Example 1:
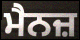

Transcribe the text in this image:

ਮੈਨਜ਼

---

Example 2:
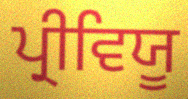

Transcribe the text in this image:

ਪ੍ਰੀਵਿਯੂ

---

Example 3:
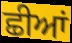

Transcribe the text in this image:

ਛੀਆਂ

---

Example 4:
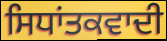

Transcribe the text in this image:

ਸਿਧਾਂਤਕਵਾਦੀ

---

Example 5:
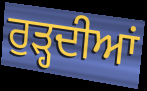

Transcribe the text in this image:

ਰੁੜ੍ਹਦੀਆਂ